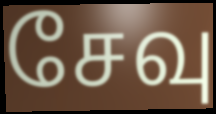
சேவு